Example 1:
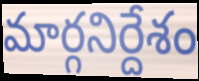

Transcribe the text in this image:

మార్గనిర్దేశం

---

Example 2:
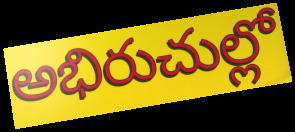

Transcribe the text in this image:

అభిరుచుల్లో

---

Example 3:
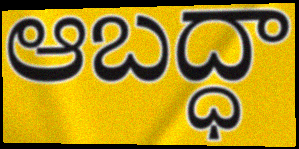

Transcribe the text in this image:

ఆబద్ధా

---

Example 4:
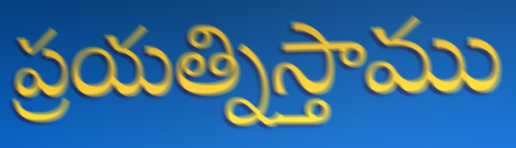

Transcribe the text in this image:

ప్రయత్నిస్తాము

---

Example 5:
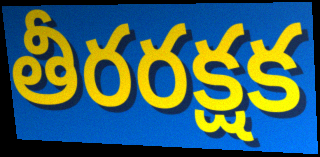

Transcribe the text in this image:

తీరరక్షక